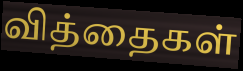
வித்தைகள்